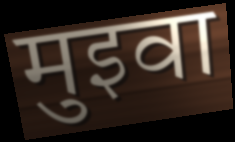
मुइवा